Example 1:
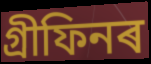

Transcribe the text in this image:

গ্ৰীফিনৰ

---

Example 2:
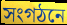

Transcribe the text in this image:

সংগঠনে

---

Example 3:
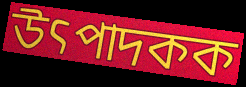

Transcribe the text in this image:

উৎপাদকক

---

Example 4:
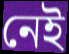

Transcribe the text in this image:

নেই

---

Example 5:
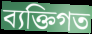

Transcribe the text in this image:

ব্যক্তিগত